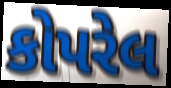
કોપરેલ